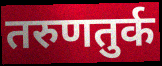
तरुणतुर्क